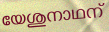
യേശുനാഥന്